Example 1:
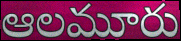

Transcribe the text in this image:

ఆలమూరు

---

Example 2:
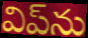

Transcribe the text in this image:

విప్‌ను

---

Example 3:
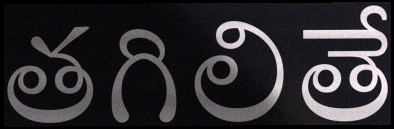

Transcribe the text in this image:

తగిలితే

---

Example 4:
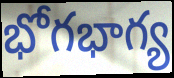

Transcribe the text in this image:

భోగభాగ్య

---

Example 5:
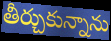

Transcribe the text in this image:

తీర్చుకున్నాను